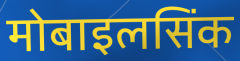
मोबाइलसिंक